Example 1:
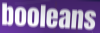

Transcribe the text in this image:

booleans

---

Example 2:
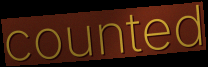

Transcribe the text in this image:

counted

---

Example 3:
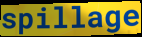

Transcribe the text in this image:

spillage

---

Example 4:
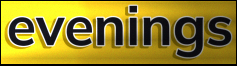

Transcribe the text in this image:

evenings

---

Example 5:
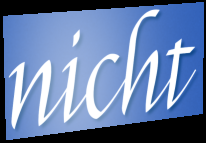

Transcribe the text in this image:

nicht